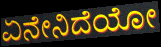
ಏನೇನಿದೆಯೋ